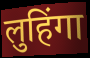
लुहिंगा